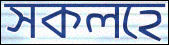
সকলহে